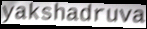
yakshadruva